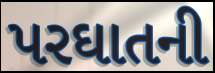
પરઘાતની